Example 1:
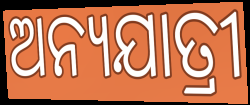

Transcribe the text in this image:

ଅନ୍ଯଯାତ୍ରୀ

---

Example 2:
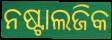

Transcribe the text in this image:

ନଷ୍ଟାଲଜିକ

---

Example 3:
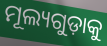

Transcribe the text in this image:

ମୂଲ୍ୟଗୁଡ଼ାକୁ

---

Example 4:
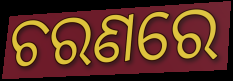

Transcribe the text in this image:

ଚରଣରେ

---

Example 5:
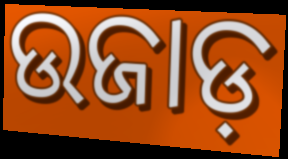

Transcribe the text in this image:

ଉଜାଡ଼